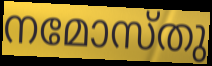
നമോസ്തു